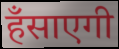
हँसाएगी